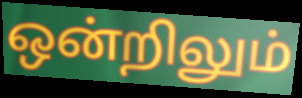
ஒன்றிலும்